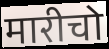
मारीचो